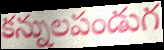
కన్నులపండుగ